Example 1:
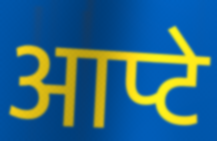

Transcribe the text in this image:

आप्टे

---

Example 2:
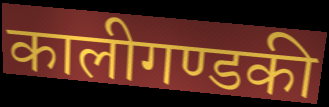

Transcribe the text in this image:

कालीगण्डकी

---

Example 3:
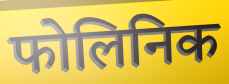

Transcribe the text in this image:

फोलिनिक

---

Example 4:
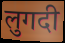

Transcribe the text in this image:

लुगदी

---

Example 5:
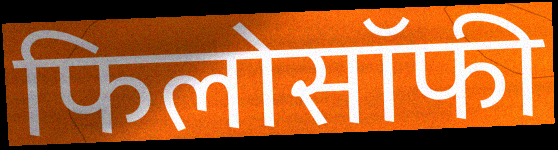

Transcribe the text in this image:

फिलोसॉफी